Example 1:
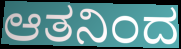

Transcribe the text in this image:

ಆತನಿಂದ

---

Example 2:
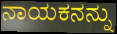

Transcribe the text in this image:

ನಾಯಕನನ್ನು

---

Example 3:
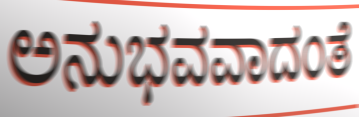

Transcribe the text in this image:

ಅನುಭವವಾದಂತೆ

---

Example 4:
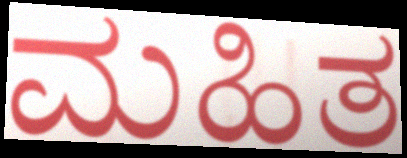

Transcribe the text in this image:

ಮಹಿತ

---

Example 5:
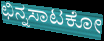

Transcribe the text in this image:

ಛಿನ್ನಸಾಟಕೋ